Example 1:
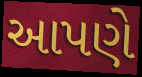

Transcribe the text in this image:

આપણે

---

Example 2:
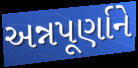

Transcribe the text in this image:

અન્નપૂર્ણાને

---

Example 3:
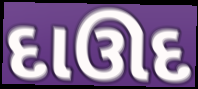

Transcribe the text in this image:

દાઊદ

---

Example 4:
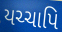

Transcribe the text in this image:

યચ્ચાપિ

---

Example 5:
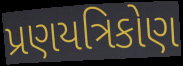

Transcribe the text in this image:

પ્રણયત્રિકોણ